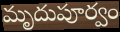
మృదుపూర్వం